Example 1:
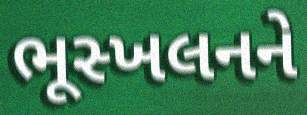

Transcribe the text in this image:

ભૂસ્ખલનને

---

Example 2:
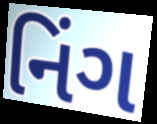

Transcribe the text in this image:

નિંગ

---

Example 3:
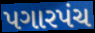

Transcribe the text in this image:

પગારપંચ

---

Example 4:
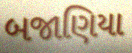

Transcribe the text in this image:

બજાણિયા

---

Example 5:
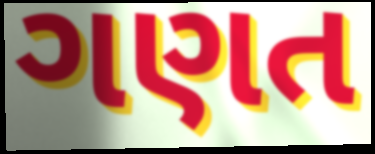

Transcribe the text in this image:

ગણત